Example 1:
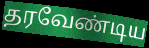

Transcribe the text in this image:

தரவேண்டிய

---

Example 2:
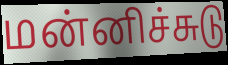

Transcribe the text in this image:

மன்னிச்சுடு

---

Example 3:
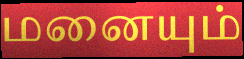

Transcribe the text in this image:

மனையும்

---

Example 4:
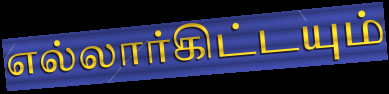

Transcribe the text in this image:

எல்லார்கிட்டயும்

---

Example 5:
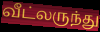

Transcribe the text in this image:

வீட்லருந்து